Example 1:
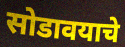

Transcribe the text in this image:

सोडावयाचे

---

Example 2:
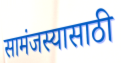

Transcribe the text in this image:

सामंजस्यासाठी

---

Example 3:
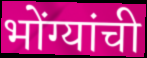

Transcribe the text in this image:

भोंग्यांची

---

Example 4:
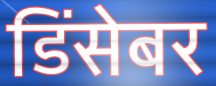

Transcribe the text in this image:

डिंसेबर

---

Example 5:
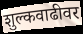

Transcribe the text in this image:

शुल्कवाढीवर